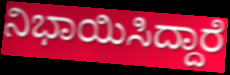
ನಿಭಾಯಿಸಿದ್ದಾರೆ